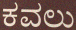
ಕವಲು